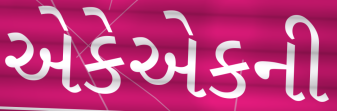
એકેએકની